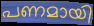
പണമായി